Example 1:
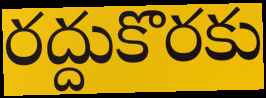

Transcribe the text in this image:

రద్దుకొరకు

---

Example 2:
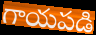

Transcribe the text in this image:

గాయపడి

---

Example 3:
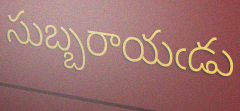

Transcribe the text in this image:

సుబ్బరాయఁడు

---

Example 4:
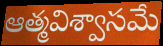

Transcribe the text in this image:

ఆత్మవిశ్వాసమే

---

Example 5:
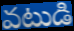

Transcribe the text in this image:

వటుడి